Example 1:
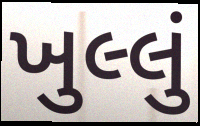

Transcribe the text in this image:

ખુલ્લું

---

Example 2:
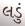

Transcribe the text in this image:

લડું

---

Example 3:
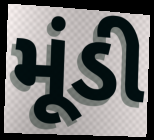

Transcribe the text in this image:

મૂંડી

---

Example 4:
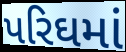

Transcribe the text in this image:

પરિઘમાં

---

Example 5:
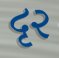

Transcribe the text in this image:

દૃર